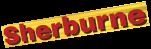
Sherburne